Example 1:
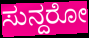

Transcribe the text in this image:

ಸುನ್ದರೋ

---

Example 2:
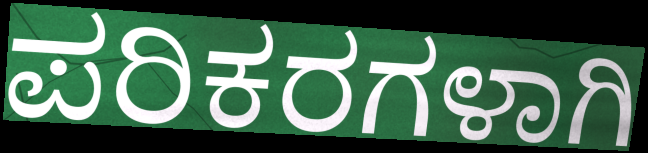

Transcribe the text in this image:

ಪರಿಕರಗಳಾಗಿ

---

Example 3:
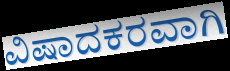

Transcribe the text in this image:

ವಿಷಾದಕರವಾಗಿ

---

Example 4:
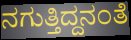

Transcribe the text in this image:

ನಗುತ್ತಿದ್ದನಂತೆ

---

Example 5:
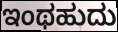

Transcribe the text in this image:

ಇಂಥಹುದು